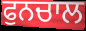
ਫੁਨਚਾਲ